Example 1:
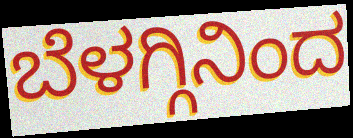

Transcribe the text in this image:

ಬೆಳಗ್ಗಿನಿಂದ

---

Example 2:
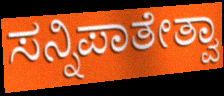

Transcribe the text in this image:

ಸನ್ನಿಪಾತೇತ್ವಾ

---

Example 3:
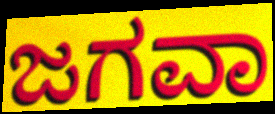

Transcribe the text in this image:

ಜಗವಾ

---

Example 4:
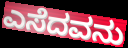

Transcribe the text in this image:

ಎಸೆದವನು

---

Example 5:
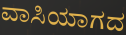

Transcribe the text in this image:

ವಾಸಿಯಾಗದ